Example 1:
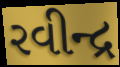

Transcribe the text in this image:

રવીન્દ્ર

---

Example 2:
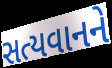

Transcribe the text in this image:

સત્યવાનને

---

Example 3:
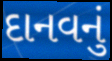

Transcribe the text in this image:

દાનવનું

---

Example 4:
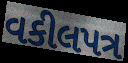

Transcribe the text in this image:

વકીલપત્ર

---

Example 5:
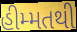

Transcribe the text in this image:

હીમ્મતથી